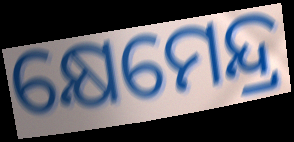
କ୍ଷେମେନ୍ଦ୍ର